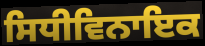
ਸਿਧੀਵਿਨਾਇਕ